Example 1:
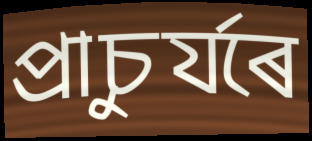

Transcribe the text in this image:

প্ৰাচুৰ্যৰে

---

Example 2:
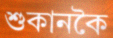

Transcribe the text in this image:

শুকানকৈ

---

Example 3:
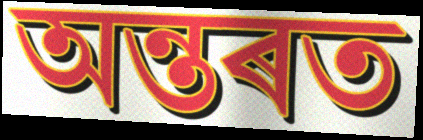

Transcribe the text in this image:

অন্তৰত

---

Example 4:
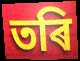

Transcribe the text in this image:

তৰি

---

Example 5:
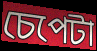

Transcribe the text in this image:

চেপেটা